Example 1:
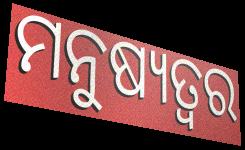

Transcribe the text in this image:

ମନୁଷ୍ୟତ୍ବର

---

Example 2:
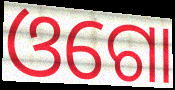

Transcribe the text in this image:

ଓଗୋ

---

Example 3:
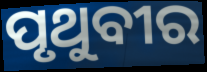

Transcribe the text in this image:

ପୃଥୁବୀର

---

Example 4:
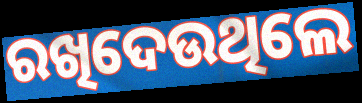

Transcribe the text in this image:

ରଖିଦେଉଥିଲେ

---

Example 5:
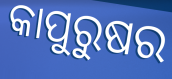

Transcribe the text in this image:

କାପୁରୁଷର